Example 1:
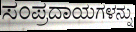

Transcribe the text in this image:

ಸಂಪ್ರದಾಯಗಳನ್ನು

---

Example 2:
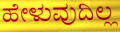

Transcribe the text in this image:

ಹೇಳುವುದಿಲ್ಲ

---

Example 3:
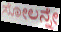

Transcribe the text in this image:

ಸೋಲನ್ನೇ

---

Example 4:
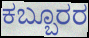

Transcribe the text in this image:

ಕಬ್ಬೂರರ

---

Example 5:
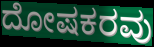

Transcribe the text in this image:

ದೋಷಕರವು